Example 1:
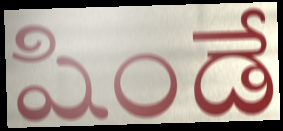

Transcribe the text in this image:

షిండే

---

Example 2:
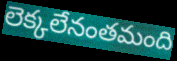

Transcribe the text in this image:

లెక్కలేనంతమంది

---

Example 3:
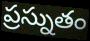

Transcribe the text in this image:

ప్రస్నుతం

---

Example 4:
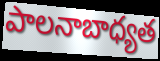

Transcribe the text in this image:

పాలనాబాధ్యత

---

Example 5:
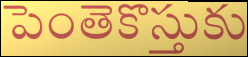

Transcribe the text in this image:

పెంతెకొస్తుకు